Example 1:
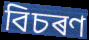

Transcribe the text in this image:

বিচৰণ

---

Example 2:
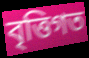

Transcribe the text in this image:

বৃত্তিগত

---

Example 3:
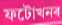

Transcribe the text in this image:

ফটোখনৰ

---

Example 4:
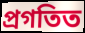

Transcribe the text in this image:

প্ৰগতিত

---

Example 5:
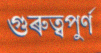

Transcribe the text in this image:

গুৰুত্বপুৰ্ণ